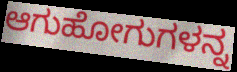
ಆಗುಹೋಗುಗಳನ್ನ